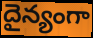
దైన్యంగా